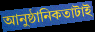
আনুষ্ঠানিকতাটাই